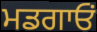
ਮਡਗਾਓਂ